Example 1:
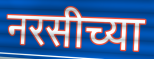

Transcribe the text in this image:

नरसीच्या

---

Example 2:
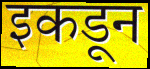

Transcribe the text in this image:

इकडून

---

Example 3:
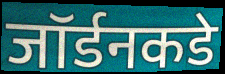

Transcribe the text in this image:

जॉर्डनकडे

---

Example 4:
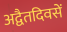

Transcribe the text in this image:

अद्वैतदिवसें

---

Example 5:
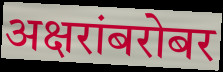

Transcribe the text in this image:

अक्षरांबरोबर